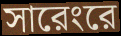
সারেংরে